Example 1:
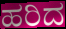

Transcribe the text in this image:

ಹರಿದ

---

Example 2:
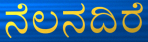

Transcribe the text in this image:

ನೆಲನದಿರೆ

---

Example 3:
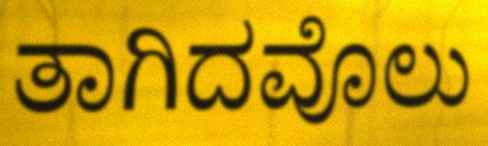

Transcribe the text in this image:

ತಾಗಿದವೊಲು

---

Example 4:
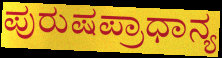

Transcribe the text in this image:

ಪುರುಷಪ್ರಾಧಾನ್ಯ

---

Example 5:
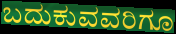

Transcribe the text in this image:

ಬದುಕುವವರಿಗೂ